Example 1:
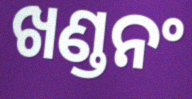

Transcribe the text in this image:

ଖଣ୍ଡନଂ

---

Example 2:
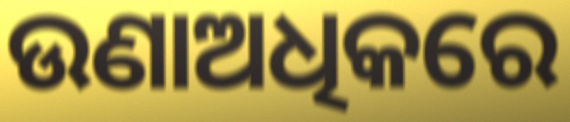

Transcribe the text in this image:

ଉଣାଅଧିକରେ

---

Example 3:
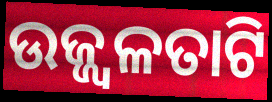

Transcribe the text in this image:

ଉଜ୍ଜ୍ୱଳତାଟି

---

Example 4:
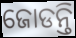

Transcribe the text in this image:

ଜୋଡନ୍ତି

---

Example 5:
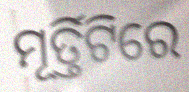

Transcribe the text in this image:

ମୂର୍ତ୍ତିଟିରେ